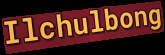
Ilchulbong